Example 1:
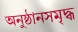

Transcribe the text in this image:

অনুষ্ঠানসমৃদ্ধ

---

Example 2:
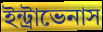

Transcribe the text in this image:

ইন্ট্রাভেনাস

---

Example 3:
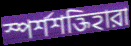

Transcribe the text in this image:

স্পর্শশক্তিহারা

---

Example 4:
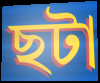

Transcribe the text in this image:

ছটা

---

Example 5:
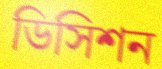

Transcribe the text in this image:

ডিসিশন